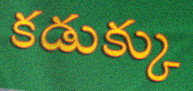
కడుక్కు